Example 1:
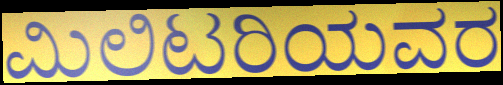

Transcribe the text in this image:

ಮಿಲಿಟರಿಯವರ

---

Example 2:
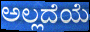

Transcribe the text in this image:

ಅಲ್ಲದೆಯೆ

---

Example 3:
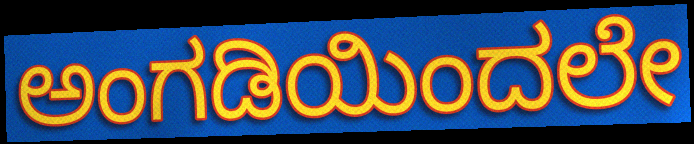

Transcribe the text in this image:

ಅಂಗಡಿಯಿಂದಲೇ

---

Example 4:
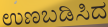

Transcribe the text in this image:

ಉಣಬಡಿಸಿದ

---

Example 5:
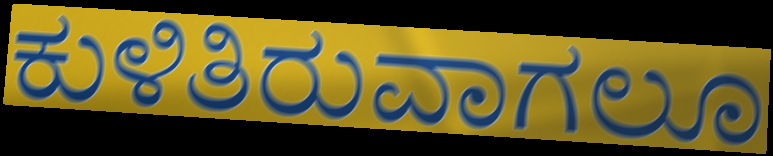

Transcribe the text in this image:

ಕುಳಿತಿರುವಾಗಲೂ